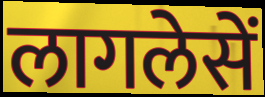
लागलेसें